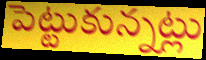
పెట్టుకున్నట్లు